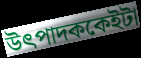
উৎপাদককেইটা